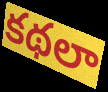
కథలా